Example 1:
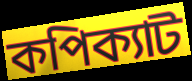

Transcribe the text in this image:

কপিক্যাট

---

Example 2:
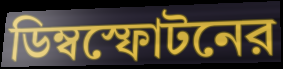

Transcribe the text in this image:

ডিম্বস্ফোটনের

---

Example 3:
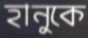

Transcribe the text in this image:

হানুকে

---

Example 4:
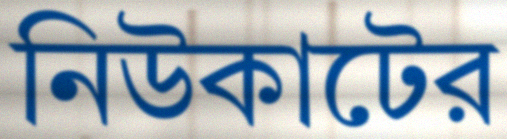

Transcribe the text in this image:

নিউকাটের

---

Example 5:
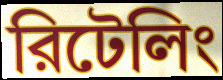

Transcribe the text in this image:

রিটেলিং